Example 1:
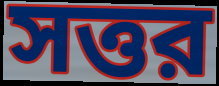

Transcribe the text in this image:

সত্তর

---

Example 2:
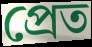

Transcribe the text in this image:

প্রেত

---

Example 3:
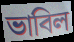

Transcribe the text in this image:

ভাবিল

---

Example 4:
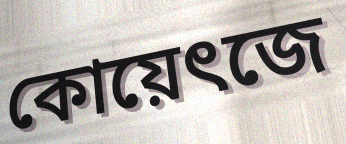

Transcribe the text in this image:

কোয়েৎজে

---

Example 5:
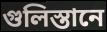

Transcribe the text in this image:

গুলিস্তানে